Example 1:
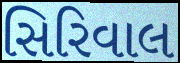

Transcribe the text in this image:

સિરિવાલ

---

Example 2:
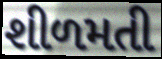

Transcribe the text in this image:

શીળમતી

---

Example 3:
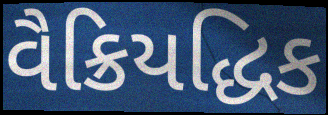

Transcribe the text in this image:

વૈક્રિયદ્ધિક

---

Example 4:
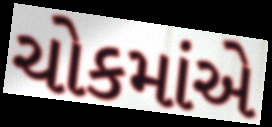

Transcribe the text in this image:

ચોકમાંએ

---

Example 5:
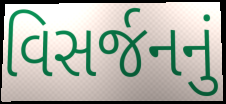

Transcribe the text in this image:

વિસર્જનનું